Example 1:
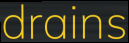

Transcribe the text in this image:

drains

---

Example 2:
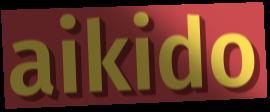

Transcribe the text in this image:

aikido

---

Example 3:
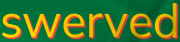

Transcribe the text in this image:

swerved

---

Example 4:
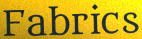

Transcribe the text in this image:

Fabrics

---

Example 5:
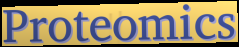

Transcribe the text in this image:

Proteomics